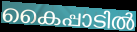
കൈപ്പാടിൽ